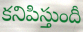
కనిపిస్తుందీ